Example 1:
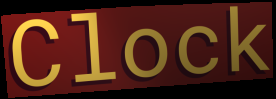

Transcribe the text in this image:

Clock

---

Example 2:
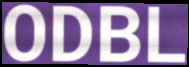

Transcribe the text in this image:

ODBL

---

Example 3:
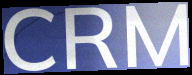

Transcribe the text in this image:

CRM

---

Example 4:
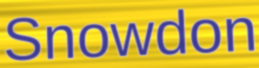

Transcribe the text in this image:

Snowdon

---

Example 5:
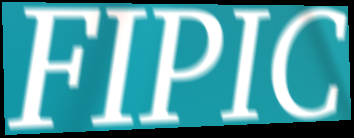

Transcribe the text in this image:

FIPIC